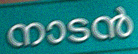
നാടൻ